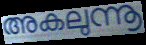
അകലുന്നൂ